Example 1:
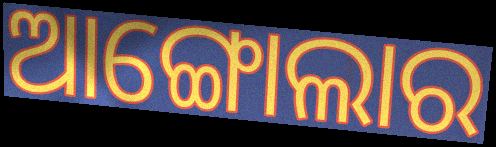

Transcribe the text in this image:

ଆଙ୍ଗୋଲାର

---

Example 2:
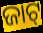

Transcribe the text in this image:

ଜାଟ୍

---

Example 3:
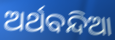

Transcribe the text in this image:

ଅର୍ଥବନ୍ଦିଆ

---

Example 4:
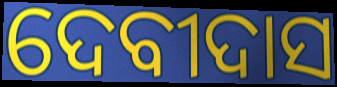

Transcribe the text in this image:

ଦେବୀଦାସ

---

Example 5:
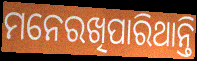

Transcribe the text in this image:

ମନେରଖିପାରିଥାନ୍ତି